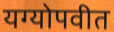
यग्योपवीत